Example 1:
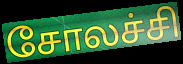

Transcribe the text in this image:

சோலச்சி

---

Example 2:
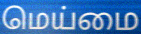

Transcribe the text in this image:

மெய்மை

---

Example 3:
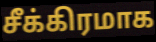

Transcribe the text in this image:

சீக்கிரமாக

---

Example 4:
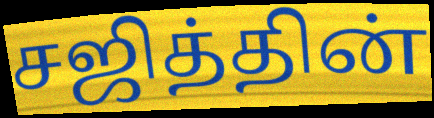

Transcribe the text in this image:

சஜித்தின்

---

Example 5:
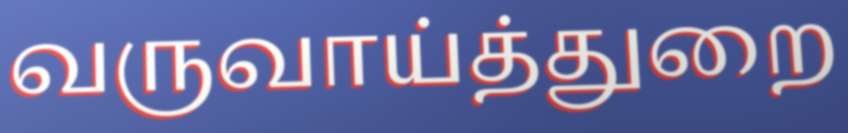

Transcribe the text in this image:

வருவாய்த்துறை